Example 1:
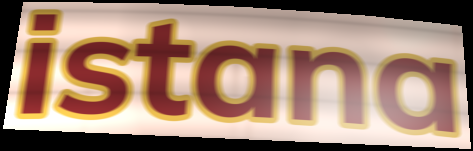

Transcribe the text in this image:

istana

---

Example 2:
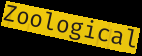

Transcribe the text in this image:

Zoological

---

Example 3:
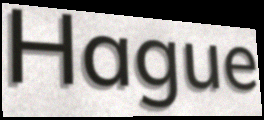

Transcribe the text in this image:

Hague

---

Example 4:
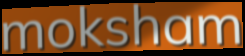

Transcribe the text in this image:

moksham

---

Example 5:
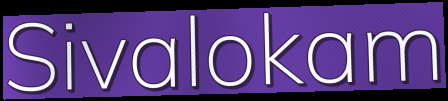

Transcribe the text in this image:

Sivalokam